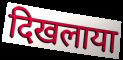
दिखलाया